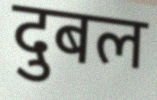
दुबल